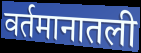
वर्तमानातली